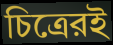
চিত্রেরই